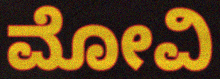
ಮೋವಿ